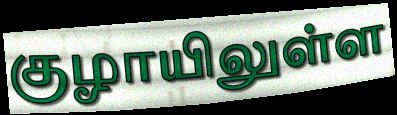
குழாயிலுள்ள